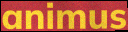
animus